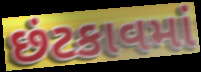
છંટકાવમાં